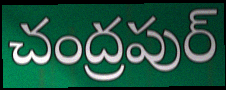
చంద్రపుర్